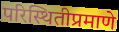
परिस्थितीप्रमाणे